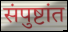
संपुष्टांत